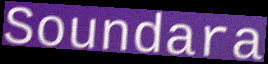
Soundara